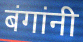
बंगांनी